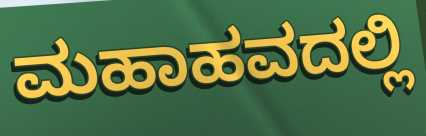
ಮಹಾಹವದಲ್ಲಿ